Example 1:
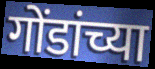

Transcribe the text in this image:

गोंडांच्या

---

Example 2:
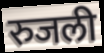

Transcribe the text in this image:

रुजली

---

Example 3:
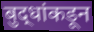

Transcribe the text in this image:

बुद्धांकडून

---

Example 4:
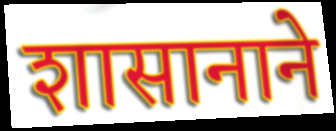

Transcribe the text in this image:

शासानाने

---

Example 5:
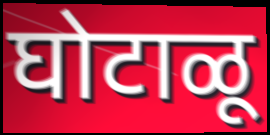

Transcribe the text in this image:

घोटाळू